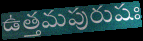
ఉత్తమపురుషః